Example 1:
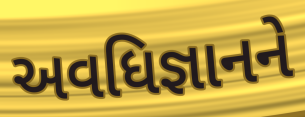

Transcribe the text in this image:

અવધિજ્ઞાનને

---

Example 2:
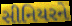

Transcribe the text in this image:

સીનિયરને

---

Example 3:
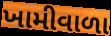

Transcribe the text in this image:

ખામીવાળા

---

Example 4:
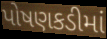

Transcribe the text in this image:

પોષણકડીમાં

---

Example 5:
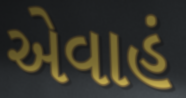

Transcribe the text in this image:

એવાહં